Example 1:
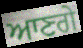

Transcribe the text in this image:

ਆਣਗੇ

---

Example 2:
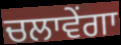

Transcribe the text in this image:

ਚਲਾਵੇਂਗਾ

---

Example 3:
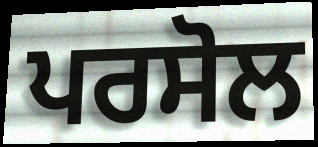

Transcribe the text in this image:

ਪਰਸੋਲ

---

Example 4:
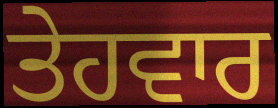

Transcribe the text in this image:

ਤੇਹਵਾਰ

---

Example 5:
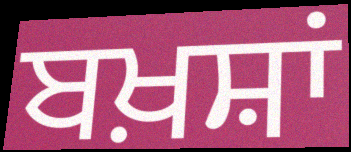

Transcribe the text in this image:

ਬਖ਼ਸ਼ਾਂ